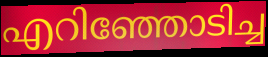
എറിഞ്ഞോടിച്ച